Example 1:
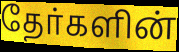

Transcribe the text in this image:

தேர்களின்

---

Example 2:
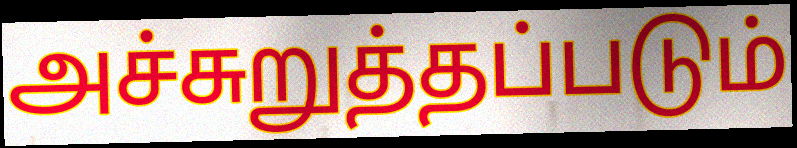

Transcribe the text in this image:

அச்சுறுத்தப்படும்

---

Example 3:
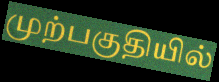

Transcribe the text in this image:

முற்பகுதியில்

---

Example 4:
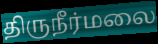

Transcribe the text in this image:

திருநீர்மலை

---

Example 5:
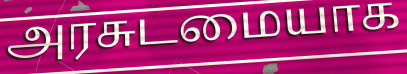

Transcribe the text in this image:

அரசுடமையாக